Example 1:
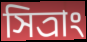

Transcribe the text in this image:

সিত্রাং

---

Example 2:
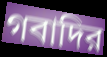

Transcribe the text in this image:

গবাদির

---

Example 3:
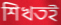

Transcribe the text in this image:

শিখতই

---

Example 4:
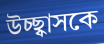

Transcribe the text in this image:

উচ্ছ্বাসকে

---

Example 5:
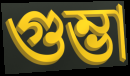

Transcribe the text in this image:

গুম্ভা